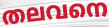
തലവനെ